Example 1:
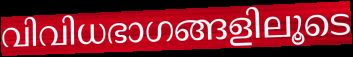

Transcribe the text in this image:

വിവിധഭാഗങ്ങളിലൂടെ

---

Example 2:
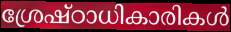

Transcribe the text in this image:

ശ്രേഷ്ഠാധികാരികൾ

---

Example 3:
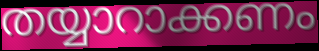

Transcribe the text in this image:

തയ്യാറാക്കണം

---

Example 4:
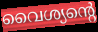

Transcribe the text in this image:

വൈശ്യന്റെ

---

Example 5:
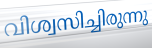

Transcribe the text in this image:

വിശ്വസിച്ചിരുന്നു